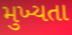
મુખ્યતા